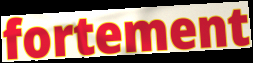
fortement